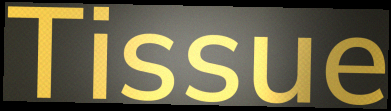
Tissue